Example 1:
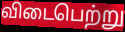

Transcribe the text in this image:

விடைபெற்று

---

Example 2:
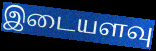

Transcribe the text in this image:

இடையளவு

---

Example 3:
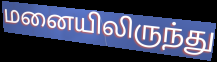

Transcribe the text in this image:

மனையிலிருந்து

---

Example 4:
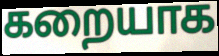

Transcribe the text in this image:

கறையாக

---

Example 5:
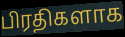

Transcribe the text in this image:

பிரதிகளாக